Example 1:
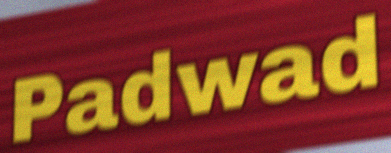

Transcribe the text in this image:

Padwad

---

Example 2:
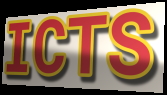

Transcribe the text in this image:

ICTS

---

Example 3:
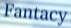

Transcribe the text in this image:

Fantacy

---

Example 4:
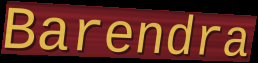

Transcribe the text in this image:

Barendra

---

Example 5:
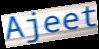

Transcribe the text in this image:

Ajeet